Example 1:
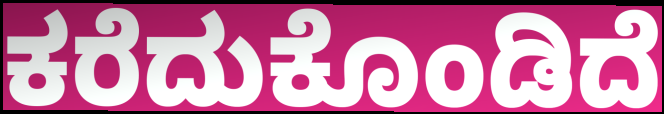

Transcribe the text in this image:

ಕರೆದುಕೊಂಡಿದೆ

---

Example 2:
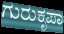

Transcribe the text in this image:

ಗುರುಕೃಪಾ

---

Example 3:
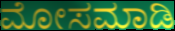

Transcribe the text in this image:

ಮೋಸಮಾಡಿ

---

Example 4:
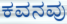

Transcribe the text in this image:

ಕವನವು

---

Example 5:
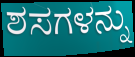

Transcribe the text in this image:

ಶಸಗಳನ್ನು